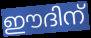
ഈദിന്